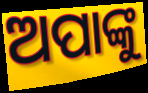
ଅପାଙ୍କୁ